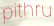
pithru